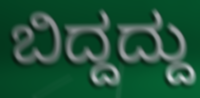
ಬಿದ್ದದ್ದು